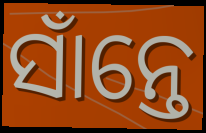
ସାଁନ୍ତେ